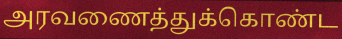
அரவணைத்துக்கொண்ட